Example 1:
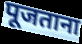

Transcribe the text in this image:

पूजताना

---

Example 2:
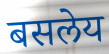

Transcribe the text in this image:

बसलेय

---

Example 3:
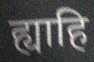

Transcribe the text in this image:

ह्याहि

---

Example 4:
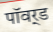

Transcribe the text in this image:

पॉवर्ड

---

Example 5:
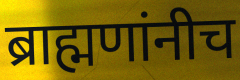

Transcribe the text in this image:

ब्राह्मणांनीच